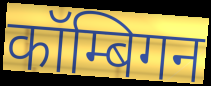
कॉम्बिगन